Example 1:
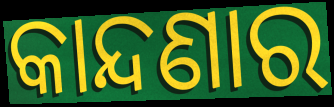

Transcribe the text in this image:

କାନ୍ଦଣାର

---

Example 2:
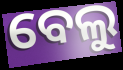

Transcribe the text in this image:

ବେଲୁ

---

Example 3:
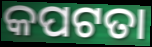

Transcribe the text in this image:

କପଟତା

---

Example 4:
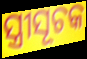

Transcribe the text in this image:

ସ୍ତ୍ରୀସୂଚକ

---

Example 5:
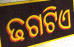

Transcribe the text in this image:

ଢଗଟିଏ